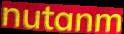
nutanm